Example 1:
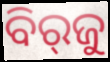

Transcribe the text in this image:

ବିର୍‌ଜୁ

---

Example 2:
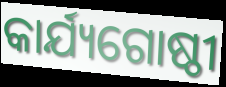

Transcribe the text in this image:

କାର୍ଯ୍ୟଗୋଷ୍ଠୀ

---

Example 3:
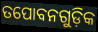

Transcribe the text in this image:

ତପୋବନଗୁଡ଼ିକ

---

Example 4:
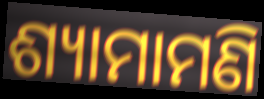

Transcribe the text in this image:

ଶ୍ୟାମାମଣି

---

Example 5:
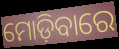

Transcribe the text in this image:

ମୋଡ଼ିବାରେ